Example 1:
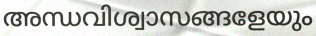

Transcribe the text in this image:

അന്ധവിശ്വാസങ്ങളേയും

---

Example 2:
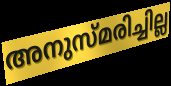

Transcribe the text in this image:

അനുസ്മരിച്ചില്ല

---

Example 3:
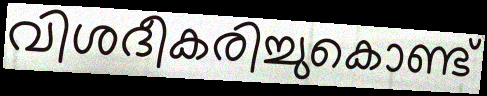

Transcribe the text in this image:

വിശദീകരിച്ചുകൊണ്ട്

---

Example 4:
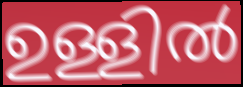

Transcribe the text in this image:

ഉള്ളിൽ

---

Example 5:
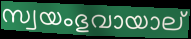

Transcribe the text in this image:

സ്വയംഭുവായാല്